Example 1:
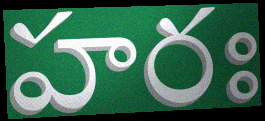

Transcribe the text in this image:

హరః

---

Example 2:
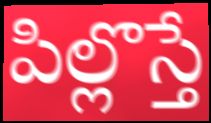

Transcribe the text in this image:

పిల్లొస్తే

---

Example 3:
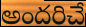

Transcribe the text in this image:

అందరిచే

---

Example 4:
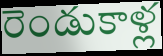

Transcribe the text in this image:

రెండుకాళ్ల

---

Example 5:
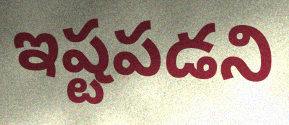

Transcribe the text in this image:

ఇష్టపడని